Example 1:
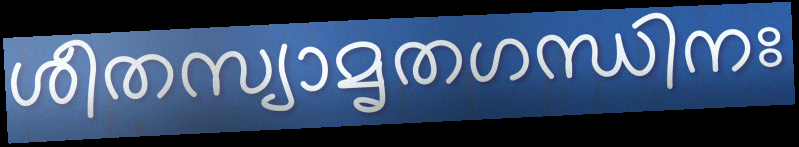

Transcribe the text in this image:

ശീതസ്യാമൃതഗന്ധിനഃ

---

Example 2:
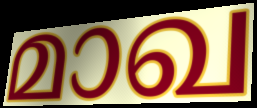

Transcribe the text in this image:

മാഖ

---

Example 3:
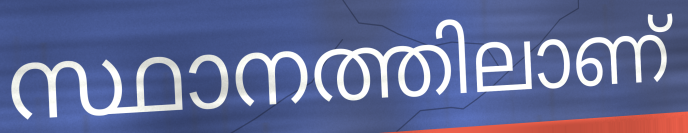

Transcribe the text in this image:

സ്ഥാനത്തിലാണ്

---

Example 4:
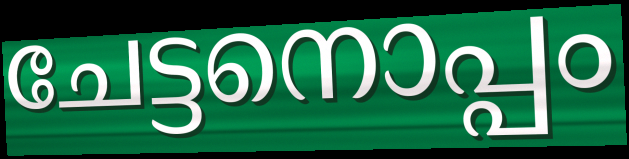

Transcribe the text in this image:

ചേട്ടനൊപ്പം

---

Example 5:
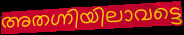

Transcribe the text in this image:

അതഗ്നിയിലാവട്ടെ